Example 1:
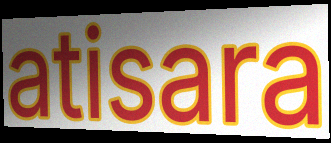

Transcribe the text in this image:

atisara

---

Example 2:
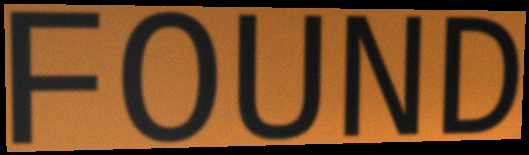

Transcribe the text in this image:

FOUND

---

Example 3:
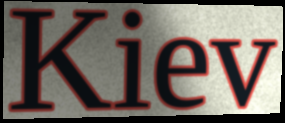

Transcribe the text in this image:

Kiev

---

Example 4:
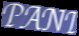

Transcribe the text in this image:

PANI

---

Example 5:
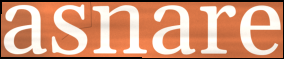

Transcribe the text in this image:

asnare